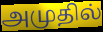
அமுதில்